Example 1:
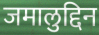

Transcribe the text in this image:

जमालुद्दिन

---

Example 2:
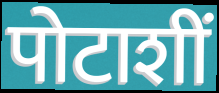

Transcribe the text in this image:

पोटाशीं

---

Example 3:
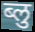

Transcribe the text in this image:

ब्लु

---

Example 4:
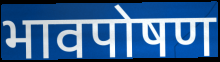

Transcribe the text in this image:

भावपोषण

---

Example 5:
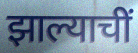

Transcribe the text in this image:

झाल्याचीं